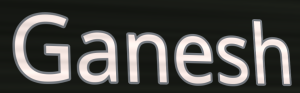
Ganesh